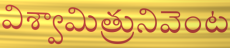
విశ్వామిత్రునివెంట